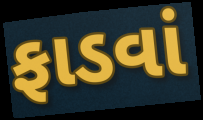
ફાડવાં